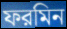
ফরমিন